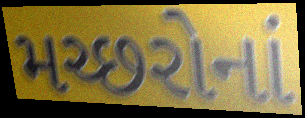
મચ્છરોનાં